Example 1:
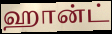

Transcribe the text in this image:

ஹான்ட்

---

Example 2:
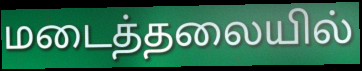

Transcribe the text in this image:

மடைத்தலையில்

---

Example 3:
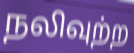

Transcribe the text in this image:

நலிவுற்ற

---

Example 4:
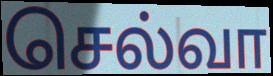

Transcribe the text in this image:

செல்வா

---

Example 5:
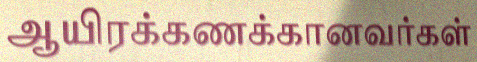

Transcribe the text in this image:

ஆயிரக்கணக்கானவர்கள்